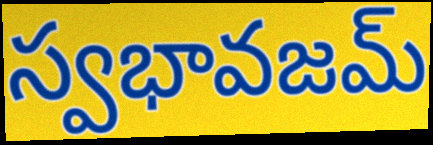
స్వభావజమ్